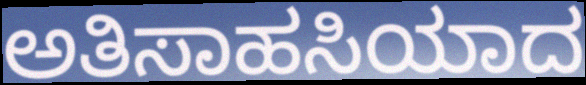
ಅತಿಸಾಹಸಿಯಾದ